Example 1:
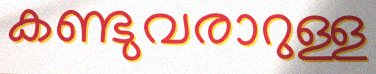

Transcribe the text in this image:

കണ്ടുവരാറുള്ള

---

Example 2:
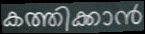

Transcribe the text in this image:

കത്തിക്കാൻ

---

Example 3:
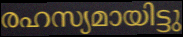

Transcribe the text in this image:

രഹസ്യമായിട്ടു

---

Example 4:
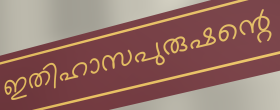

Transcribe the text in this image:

ഇതിഹാസപുരുഷന്റെ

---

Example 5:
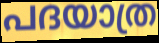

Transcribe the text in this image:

പദയാത്ര